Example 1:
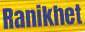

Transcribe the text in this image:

Ranikhet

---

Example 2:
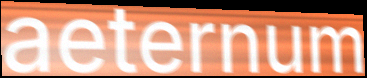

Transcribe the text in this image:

aeternum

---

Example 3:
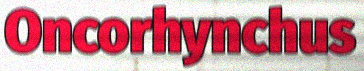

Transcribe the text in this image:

Oncorhynchus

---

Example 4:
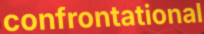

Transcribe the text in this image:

confrontational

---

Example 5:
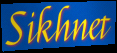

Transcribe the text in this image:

Sikhnet